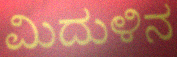
ಮಿದುಳಿನ